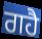
ਗਹੈ